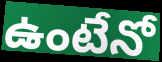
ఉంటేనో